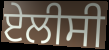
ਏਲੀਸੀ